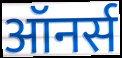
ऑनर्स